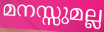
മനസ്സുമല്ല